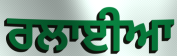
ਰਲਾਈਆ